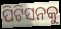
ପିଟିସନକୁ